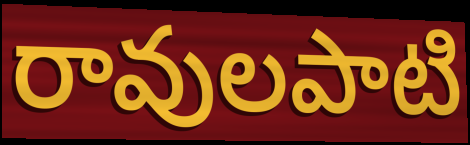
రావులపాటి